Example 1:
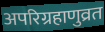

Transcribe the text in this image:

अपरिग्रहाणुव्रत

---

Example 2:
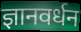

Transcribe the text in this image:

ज्ञानवर्धन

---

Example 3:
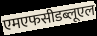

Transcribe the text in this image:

एमएफसीडब्‍लूएल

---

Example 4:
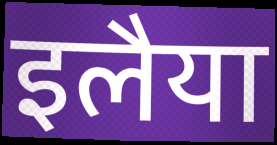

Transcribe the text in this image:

इलैया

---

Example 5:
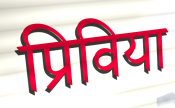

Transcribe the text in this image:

प्रिविया